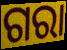
ଗରା